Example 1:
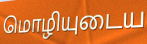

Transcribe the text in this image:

மொழியுடைய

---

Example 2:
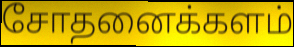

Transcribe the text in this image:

சோதனைக்களம்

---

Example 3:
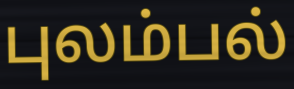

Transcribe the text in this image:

புலம்பல்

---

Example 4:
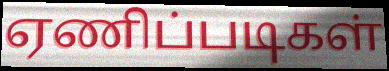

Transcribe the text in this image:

ஏணிப்படிகள்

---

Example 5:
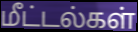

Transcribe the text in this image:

மீட்டல்கள்